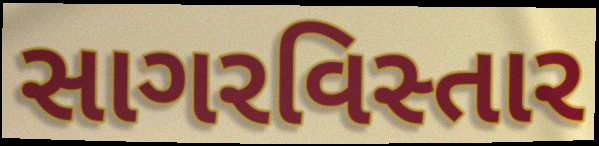
સાગરવિસ્તાર